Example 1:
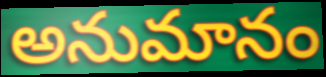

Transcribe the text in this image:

అనుమానం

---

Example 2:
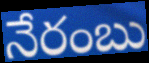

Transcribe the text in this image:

నేరంబు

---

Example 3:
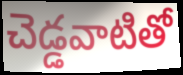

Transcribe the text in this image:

చెడ్డవాటితో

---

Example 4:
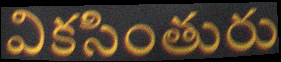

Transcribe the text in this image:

వికసింతురు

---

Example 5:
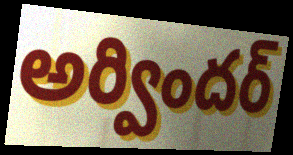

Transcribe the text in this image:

అర్విందర్